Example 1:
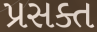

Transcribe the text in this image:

પ્રસક્ત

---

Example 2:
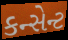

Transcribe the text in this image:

કન્સેન્ટ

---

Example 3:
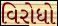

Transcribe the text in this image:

વિરોધો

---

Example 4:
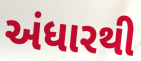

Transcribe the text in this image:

અંધારથી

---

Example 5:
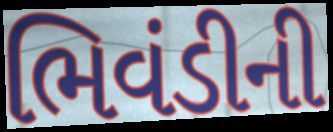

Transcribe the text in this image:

ભિવંડીની